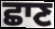
ਛਾਣ